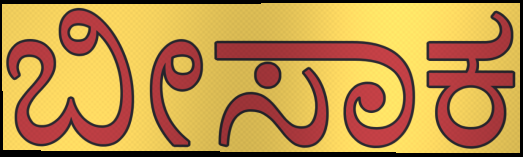
ಬೀಸಾಕ